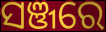
ସଞ୍ଜରେ